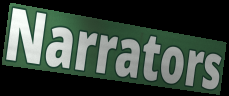
Narrators